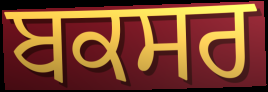
ਬਕਸਰ